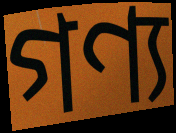
গণ্য